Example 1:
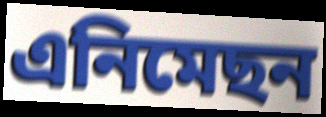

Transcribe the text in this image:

এনিমেছন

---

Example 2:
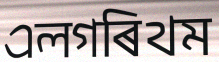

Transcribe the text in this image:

এলগৰিথম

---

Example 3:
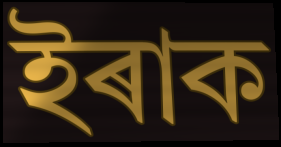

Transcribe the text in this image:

ইৰাক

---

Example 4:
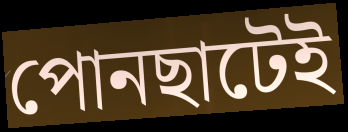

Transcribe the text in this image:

পোনছাটেই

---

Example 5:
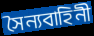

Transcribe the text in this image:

সৈন্যবাহিনী